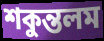
শকুন্তলম